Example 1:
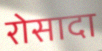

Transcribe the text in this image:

रोसादा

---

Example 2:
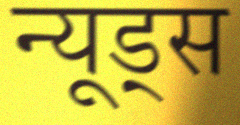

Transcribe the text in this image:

न्यूड्स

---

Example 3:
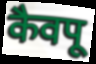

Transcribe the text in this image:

कैवपू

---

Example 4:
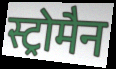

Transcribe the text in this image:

स्ट्रोमैन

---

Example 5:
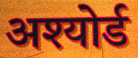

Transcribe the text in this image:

अश्योर्ड